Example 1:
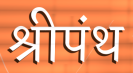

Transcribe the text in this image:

श्रीपंथ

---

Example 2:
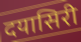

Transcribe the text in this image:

दयासिरी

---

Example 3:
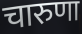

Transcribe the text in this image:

चारुणा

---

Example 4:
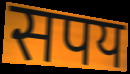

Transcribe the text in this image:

सपय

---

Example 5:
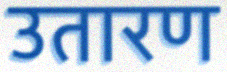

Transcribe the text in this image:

उतारण